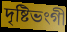
দৃষ্টিভংগী